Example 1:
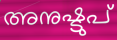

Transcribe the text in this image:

അനുഷ്ടുപ്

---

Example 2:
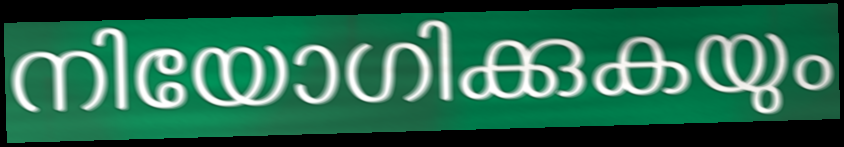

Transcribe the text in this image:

നിയോഗിക്കുകയും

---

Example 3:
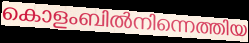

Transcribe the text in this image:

കൊളംബിൽനിന്നെത്തിയ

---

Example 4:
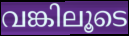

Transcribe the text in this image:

വങ്കിലൂടെ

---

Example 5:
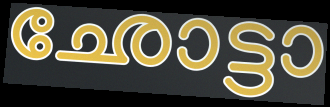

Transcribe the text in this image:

ഛോട്ടാ